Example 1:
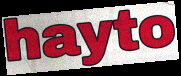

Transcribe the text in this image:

hayto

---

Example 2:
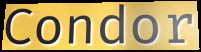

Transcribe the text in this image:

Condor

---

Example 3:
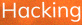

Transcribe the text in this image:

Hacking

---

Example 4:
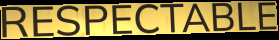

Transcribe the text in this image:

RESPECTABLE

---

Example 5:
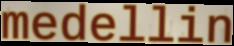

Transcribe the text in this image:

medellin